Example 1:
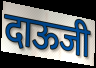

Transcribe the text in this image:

दाऊजी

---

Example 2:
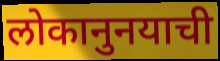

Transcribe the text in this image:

लोकानुनयाची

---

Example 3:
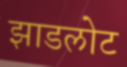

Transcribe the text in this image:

झाडलोट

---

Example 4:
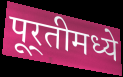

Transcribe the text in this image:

पूर्तीमध्ये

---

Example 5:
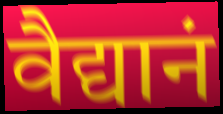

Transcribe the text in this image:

वैद्यानं